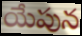
యేపున